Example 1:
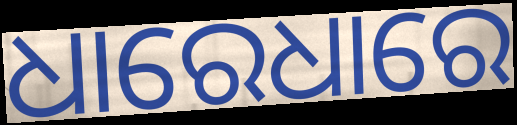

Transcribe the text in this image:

ଧାରେଧାରେ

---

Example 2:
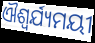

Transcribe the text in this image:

ଐଶ୍ୱର୍ଯ୍ୟମୟୀ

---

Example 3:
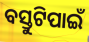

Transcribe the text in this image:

ବସ୍ତୁଟିପାଇଁ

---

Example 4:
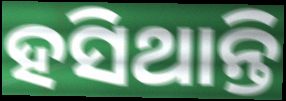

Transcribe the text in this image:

ହସିଥାନ୍ତି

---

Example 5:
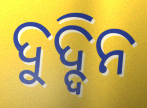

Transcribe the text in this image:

ଦୁଦ୍ଦିନ